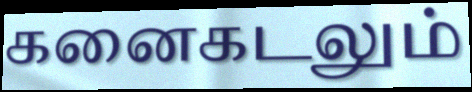
கனைகடலும்